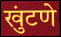
खुंटणे